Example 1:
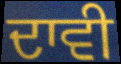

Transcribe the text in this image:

ਦਾਵੀ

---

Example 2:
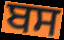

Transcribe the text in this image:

ਬਸ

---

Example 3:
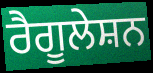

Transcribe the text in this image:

ਰੈਗੂਲੇਸ਼ਨ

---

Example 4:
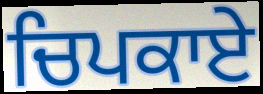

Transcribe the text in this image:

ਚਿਪਕਾਏ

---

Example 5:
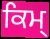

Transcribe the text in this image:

ਕਿਮ੍